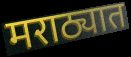
मराठ्यात